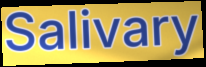
Salivary